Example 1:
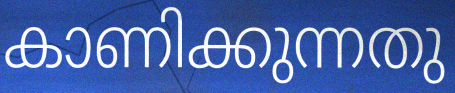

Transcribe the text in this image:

കാണിക്കുന്നതു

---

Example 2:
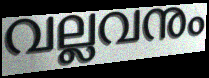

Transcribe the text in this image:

വല്ലവനും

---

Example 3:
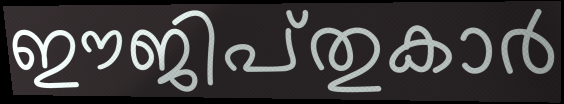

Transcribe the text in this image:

ഈജിപ്‌തുകാർ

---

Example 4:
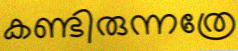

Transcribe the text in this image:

കണ്ടിരുന്നത്രേ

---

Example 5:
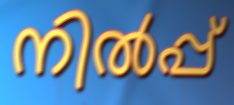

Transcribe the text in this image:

നിൽപ്പ്